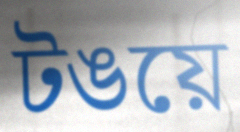
টঙয়ে